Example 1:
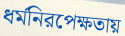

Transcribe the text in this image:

ধর্মনিরপেক্ষতায়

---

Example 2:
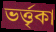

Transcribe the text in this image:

ভর্ত্তৃকা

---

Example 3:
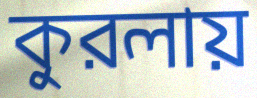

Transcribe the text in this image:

কুরলায়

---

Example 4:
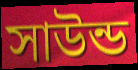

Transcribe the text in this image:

সাউন্ড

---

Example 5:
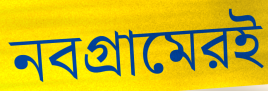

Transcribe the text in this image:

নবগ্রামেরই